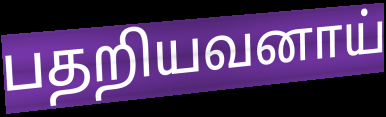
பதறியவனாய்